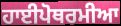
ਹਾਈਪੋਥਰਮੀਆ